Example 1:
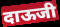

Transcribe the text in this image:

दाऊजी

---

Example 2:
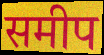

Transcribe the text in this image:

समीप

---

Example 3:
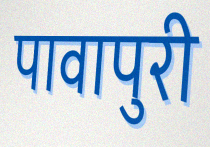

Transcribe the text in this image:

पावापुरी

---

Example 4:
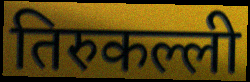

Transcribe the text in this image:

तिरुकल्ली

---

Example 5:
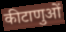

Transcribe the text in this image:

कीटाणुओं